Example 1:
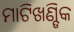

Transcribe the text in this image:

ମାଟିଖଣ୍ଡିକ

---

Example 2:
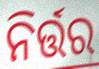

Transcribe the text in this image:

ନିର୍ତ୍ତର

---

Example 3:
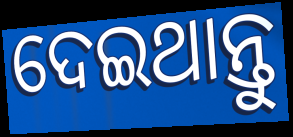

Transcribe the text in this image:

ଦେଇଥାନ୍ତୁ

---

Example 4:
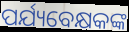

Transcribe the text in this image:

ପର୍ଯ୍ୟବେକ୍ଷକଙ୍କ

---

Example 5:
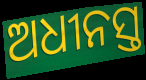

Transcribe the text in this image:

ଅଧୀନସ୍ତ